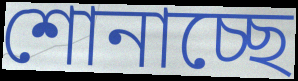
শোনাচ্ছে